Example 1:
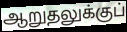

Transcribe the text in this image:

ஆறுதலுக்குப்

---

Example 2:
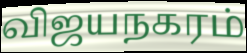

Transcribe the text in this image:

விஜயநகரம்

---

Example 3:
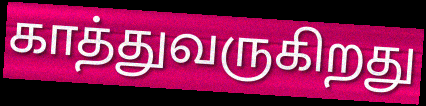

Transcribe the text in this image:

காத்துவருகிறது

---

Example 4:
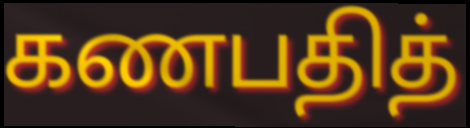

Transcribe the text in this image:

கணபதித்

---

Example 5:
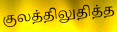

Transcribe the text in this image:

குலத்திலுதித்த